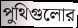
পুথিগুলোর